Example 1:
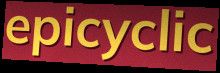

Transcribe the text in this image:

epicyclic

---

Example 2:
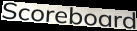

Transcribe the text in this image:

Scoreboard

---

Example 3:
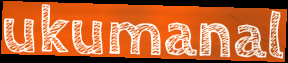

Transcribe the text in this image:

ukumanal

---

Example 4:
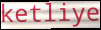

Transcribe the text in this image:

ketliye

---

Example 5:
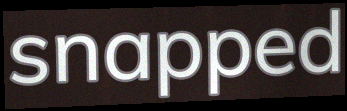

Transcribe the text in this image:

snapped